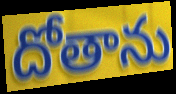
దోతాను